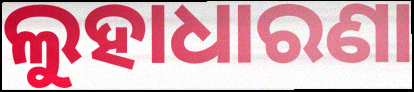
ଲୁହାଧାରଣା